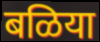
बळिया